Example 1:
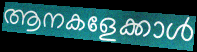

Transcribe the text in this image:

ആനകളേക്കാൾ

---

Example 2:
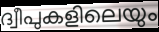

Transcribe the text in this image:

ദ്വീപുകളിലെയും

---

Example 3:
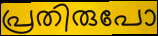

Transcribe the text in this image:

പ്രതിരുപോ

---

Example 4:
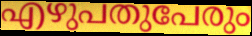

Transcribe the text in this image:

എഴുപതുപേരും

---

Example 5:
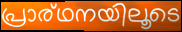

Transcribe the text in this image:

പ്രാര്ഥനയിലൂടെ